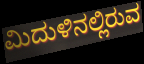
ಮಿದುಳಿನಲ್ಲಿರುವ